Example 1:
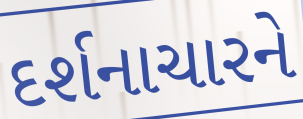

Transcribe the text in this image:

દર્શનાચારને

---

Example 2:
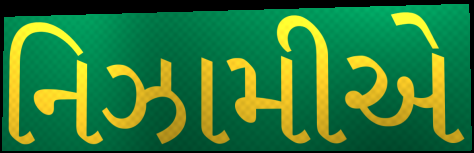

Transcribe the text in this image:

નિઝામીએ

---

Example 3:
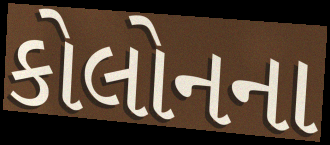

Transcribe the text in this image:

કોલોનના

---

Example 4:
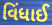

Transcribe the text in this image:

વિંધાઈ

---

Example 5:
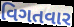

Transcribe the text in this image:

વિગતવાર